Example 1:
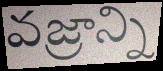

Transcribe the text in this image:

వజ్రాన్ని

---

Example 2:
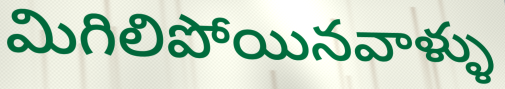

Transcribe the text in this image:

మిగిలిపోయినవాళ్ళు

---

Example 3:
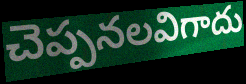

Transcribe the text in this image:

చెప్పనలవిగాదు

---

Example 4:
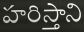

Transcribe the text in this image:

హరిస్తాని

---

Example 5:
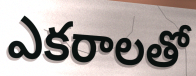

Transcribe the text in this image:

ఎకరాలతో